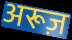
अरूज़